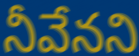
నీవేనని